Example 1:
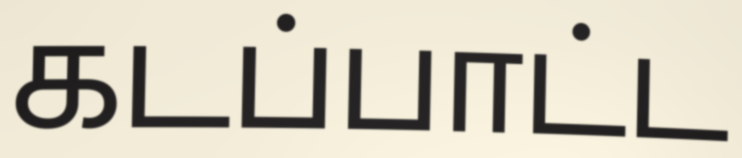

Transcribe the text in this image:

கடப்பாட்ட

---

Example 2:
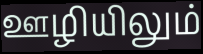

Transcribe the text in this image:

ஊழியிலும்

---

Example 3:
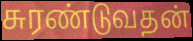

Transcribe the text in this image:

சுரண்டுவதன்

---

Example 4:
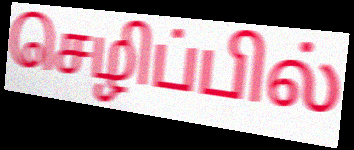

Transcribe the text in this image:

செழிப்பில்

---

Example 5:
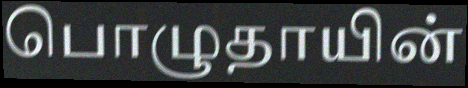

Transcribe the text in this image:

பொழுதாயின்